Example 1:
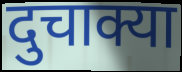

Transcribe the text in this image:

दुचाक्या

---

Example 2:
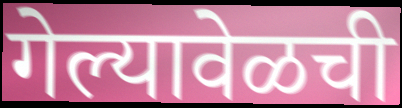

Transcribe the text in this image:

गेल्यावेळची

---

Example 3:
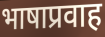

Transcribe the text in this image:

भाषाप्रवाह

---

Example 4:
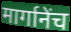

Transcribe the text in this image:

मार्गानेंच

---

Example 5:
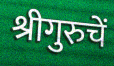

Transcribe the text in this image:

श्रीगुरुचें